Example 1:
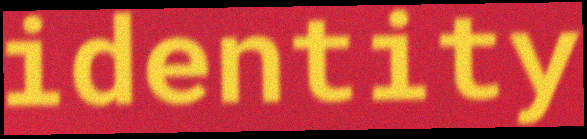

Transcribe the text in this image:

identity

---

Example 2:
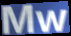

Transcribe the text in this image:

Mw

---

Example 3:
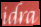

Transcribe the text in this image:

idra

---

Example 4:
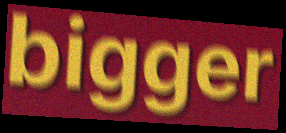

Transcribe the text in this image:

bigger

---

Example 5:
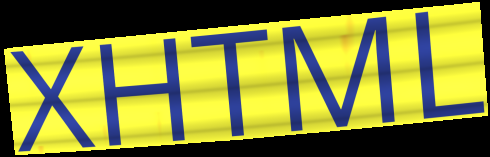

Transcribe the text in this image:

XHTML